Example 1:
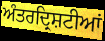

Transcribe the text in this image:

ਅੰਤਰਦ੍ਰਿਸ਼ਟੀਆਂ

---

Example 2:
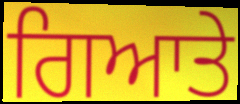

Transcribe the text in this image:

ਗਿਆਤੇ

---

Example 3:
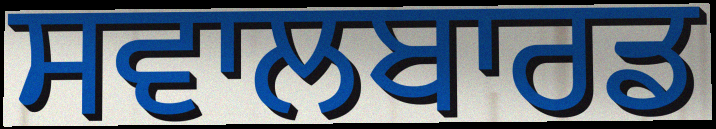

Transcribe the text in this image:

ਸਵਾਲਬਾਰਡ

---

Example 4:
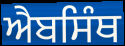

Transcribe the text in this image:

ਐਬਸਿੰਥ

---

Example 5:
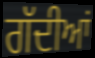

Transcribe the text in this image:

ਗੱਦੀਆਂ